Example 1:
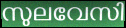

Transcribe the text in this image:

സുലവേസി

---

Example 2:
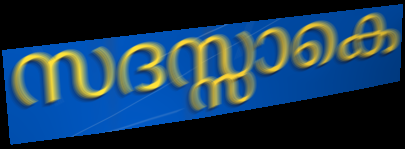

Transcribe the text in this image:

സദസ്സാകെ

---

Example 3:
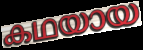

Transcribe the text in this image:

കഥയായ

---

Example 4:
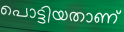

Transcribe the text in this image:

പൊട്ടിയതാണ്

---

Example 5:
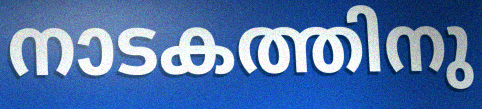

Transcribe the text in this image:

നാടകത്തിനു